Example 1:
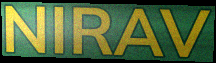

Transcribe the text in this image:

NIRAV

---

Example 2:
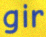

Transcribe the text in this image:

gir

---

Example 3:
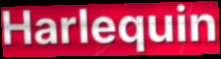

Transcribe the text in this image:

Harlequin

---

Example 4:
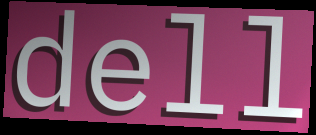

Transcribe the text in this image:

dell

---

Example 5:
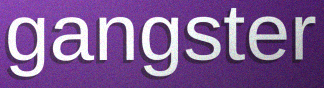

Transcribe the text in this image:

gangster